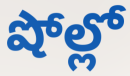
షోల్లో